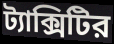
ট্যাক্সিটির